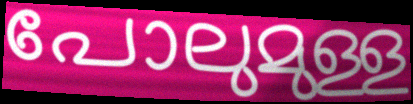
പോലുമുള്ള